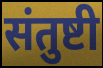
संतुष्टी